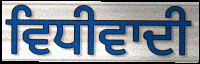
ਵਿਧੀਵਾਦੀ